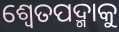
ଶ୍ୱେତପଦ୍ମାକୁ